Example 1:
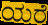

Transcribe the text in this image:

ಯರೆ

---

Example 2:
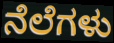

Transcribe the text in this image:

ನೆಲೆಗಳು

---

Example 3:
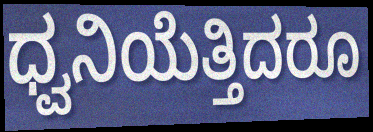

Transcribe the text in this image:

ಧ್ವನಿಯೆತ್ತಿದರೂ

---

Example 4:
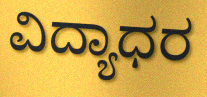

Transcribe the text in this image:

ವಿದ್ಯಾಧರ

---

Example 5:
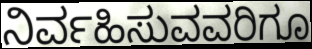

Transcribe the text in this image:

ನಿರ್ವಹಿಸುವವರಿಗೂ